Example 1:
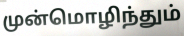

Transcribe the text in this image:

முன்மொழிந்தும்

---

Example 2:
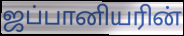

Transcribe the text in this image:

ஜப்பானியரின்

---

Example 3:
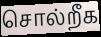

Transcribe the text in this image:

சொல்றீக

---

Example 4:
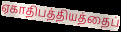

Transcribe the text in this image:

ஏகாதிபத்தியத்தைப்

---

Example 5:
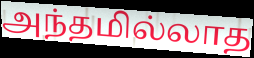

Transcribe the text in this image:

அந்தமில்லாத